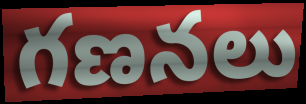
గణనలు